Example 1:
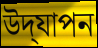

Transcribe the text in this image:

উদ্‌যাপন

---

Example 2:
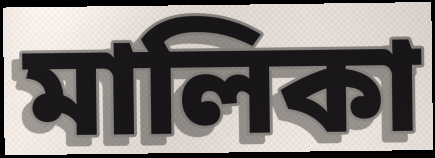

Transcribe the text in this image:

মালিকা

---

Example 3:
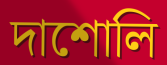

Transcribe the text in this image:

দাশোলি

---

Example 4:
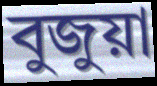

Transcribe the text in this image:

বুজুয়া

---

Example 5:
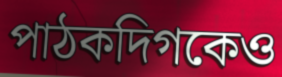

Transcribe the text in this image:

পাঠকদিগকেও